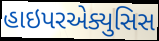
હાઇપરએક્યુસિસ